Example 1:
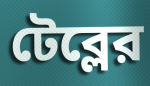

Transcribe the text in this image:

টেব্লের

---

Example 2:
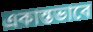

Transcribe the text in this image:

একান্তভাবে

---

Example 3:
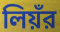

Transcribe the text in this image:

লিয়ঁর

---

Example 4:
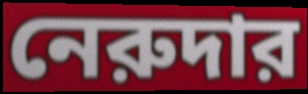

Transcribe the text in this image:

নেরুদার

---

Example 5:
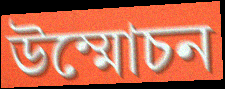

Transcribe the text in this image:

উম্মোচন